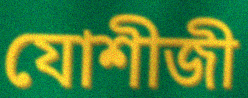
যোশীজী